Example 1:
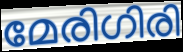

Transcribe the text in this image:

മേരിഗിരി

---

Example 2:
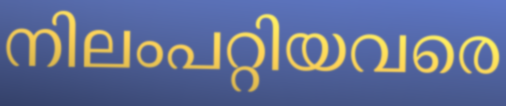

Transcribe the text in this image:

നിലംപറ്റിയവരെ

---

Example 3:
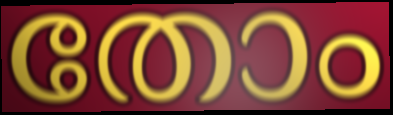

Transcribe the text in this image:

തോം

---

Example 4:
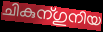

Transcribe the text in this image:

ചികുന്ഗുനിയ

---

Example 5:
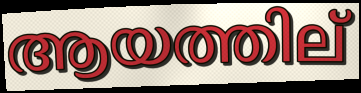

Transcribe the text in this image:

ആയത്തില്